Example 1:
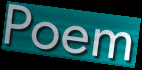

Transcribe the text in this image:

Poem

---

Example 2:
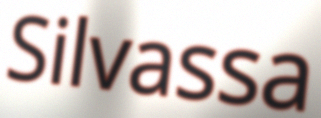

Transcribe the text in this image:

Silvassa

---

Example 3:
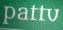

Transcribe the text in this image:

pattu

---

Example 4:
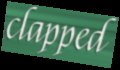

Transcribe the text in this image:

clapped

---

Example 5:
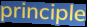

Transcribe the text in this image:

principle